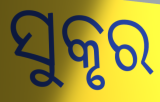
ସୁକୃର